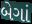
બેગાં